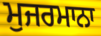
ਮੁਜਰਮਾਨਾ